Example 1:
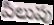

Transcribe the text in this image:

పిలుపు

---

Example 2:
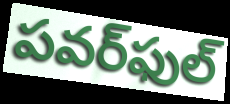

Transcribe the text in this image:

పవర్‌ఫుల్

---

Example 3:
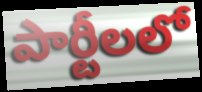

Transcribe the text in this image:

పార్టీలలో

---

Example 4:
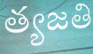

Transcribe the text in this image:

త్యజతి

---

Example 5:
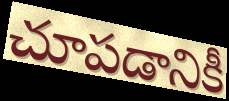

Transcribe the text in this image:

చూపడానికీ